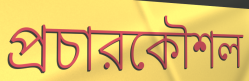
প্রচারকৌশল